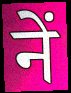
नें